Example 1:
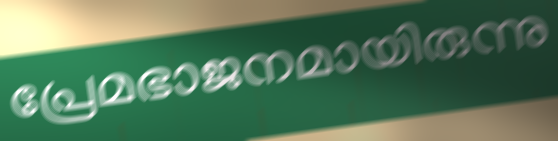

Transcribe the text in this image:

പ്രേമഭാജനമായിരുന്നു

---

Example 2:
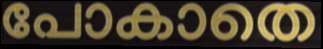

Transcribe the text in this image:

പോകാതെ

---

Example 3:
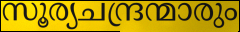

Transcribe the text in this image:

സൂര്യചന്ദ്രന്മാരും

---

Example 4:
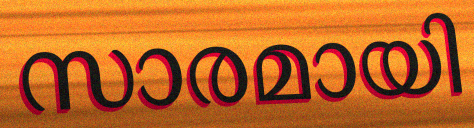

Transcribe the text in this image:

സാരമായി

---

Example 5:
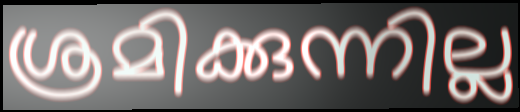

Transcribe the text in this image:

ശ്രമിക്കുന്നില്ല